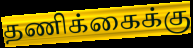
தணிக்கைக்கு